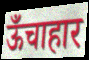
ऊँचाहार